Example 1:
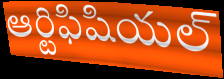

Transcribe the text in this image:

ఆర్టిఫిషియల్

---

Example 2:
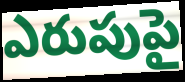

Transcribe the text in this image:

ఎరుపుపై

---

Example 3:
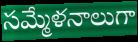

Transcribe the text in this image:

సమ్మేళనాలుగా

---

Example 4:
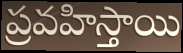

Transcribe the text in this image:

ప్రవహిస్తాయి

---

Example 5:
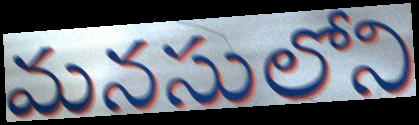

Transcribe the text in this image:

మనసులోని